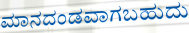
ಮಾನದಂಡವಾಗಬಹುದು